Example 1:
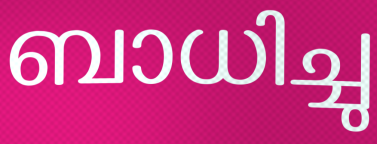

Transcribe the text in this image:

ബാധിച്ചു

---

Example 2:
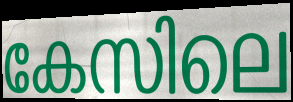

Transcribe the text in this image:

കേസിലെ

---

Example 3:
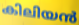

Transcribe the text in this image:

കിലിയൻ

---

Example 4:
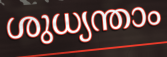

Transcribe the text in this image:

ശുധ്യന്താം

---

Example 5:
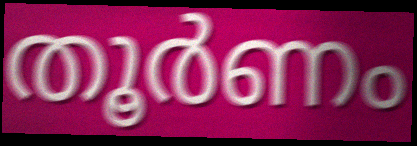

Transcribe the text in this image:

തൂർണം